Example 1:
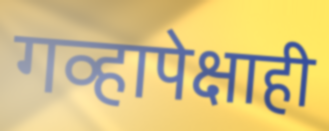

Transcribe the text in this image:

गव्हापेक्षाही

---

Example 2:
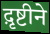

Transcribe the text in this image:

द़ृष्टीने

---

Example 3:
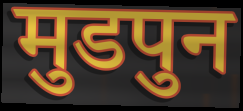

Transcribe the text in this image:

मुडपुन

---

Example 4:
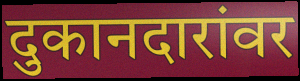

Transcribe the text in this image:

दुकानदारांवर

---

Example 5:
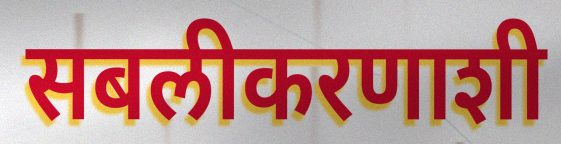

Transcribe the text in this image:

सबलीकरणाशी